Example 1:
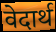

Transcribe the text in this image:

वेदार्थ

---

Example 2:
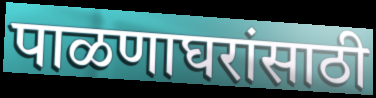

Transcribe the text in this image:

पाळणाघरांसाठी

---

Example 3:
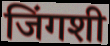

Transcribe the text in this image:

जिंगशी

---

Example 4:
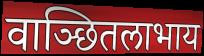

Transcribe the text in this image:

वाञ्छितलाभाय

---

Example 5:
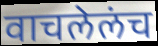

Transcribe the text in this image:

वाचलेलंच